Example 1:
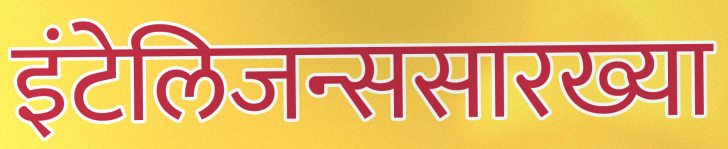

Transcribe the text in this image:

इंटेलिजन्ससारख्या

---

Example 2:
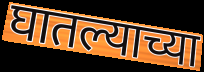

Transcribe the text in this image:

घातल्याच्या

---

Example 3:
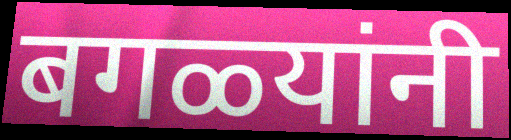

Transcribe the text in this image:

बगळ्यांनी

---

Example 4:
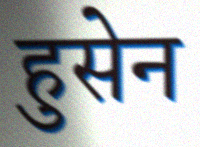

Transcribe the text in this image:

हुसेन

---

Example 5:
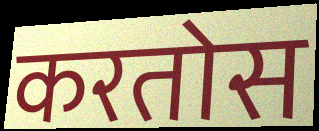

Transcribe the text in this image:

करतोस